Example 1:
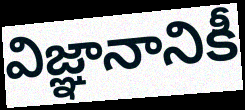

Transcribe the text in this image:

విజ్ఞానానికీ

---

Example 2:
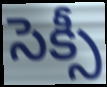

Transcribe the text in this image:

సెక్సీ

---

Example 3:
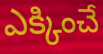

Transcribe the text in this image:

ఎక్కించే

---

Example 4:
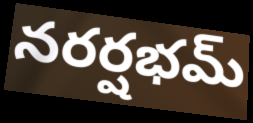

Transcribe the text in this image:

నరర్షభమ్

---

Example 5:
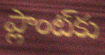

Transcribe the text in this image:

ప్లాంట్‌కు